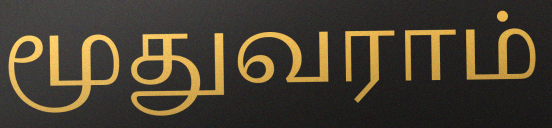
மூதுவராம்